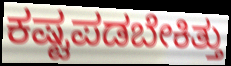
ಕಷ್ಟಪಡಬೇಕಿತ್ತು